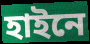
হাইনে